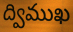
ద్విముఖ